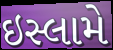
ઇસ્લામે